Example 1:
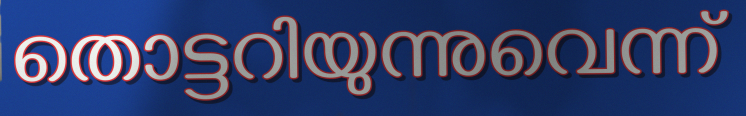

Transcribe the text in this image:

തൊട്ടറിയുന്നുവെന്ന്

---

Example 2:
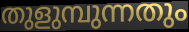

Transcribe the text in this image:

തുളുമ്പുന്നതും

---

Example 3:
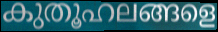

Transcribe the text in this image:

കുതൂഹലങ്ങളെ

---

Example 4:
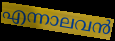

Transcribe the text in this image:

എന്നാലവൻ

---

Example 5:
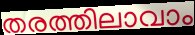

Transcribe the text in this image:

തരത്തിലാവാം